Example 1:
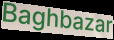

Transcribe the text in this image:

Baghbazar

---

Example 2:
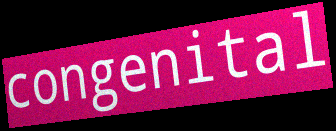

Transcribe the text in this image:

congenital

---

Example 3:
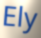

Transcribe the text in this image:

Ely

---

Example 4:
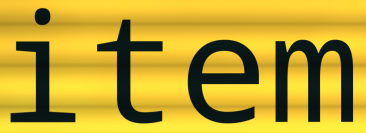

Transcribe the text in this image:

item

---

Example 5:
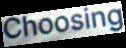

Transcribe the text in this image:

Choosing